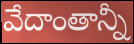
వేదాంతాన్నీ